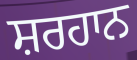
ਸ਼ਰਹਾਨ